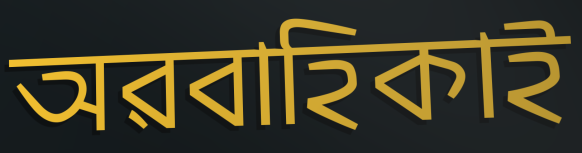
অৱবাহিকাই